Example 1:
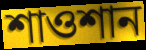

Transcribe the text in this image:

শাওশান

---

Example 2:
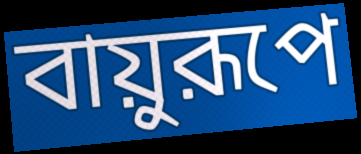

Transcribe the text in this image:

বায়ুরূপে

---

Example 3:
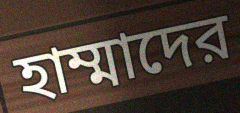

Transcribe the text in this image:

হাম্মাদের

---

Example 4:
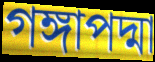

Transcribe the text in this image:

গঙ্গাপদ্মা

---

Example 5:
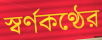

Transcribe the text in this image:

স্বর্ণকণ্ঠের